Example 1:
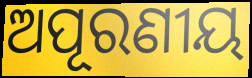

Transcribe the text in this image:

ଅପୂରଣୀୟ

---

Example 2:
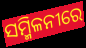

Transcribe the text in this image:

ସମ୍ମିଳନୀରେ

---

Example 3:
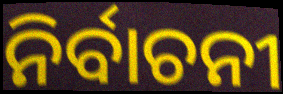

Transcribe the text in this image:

ନିର୍ବାଚନୀ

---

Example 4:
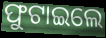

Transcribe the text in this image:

ଫୁଟାଇଲେ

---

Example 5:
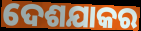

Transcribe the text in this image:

ଦେଶଯାକର